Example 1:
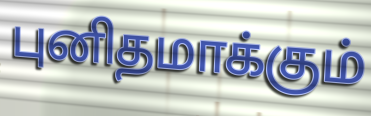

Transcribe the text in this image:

புனிதமாக்கும்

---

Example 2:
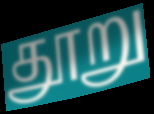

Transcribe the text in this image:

தூறு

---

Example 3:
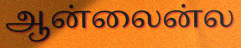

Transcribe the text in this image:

ஆன்லைன்ல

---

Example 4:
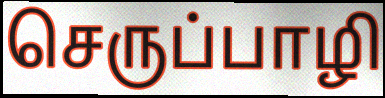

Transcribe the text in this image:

செருப்பாழி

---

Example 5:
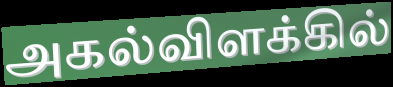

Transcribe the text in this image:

அகல்விளக்கில்